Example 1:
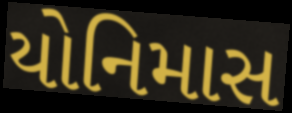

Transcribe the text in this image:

યોનિમાસ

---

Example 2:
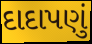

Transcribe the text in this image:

દાદાપણું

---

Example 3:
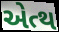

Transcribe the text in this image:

એત્થ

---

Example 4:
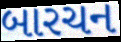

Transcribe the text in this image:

બારચન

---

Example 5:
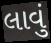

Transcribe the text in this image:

લાવું